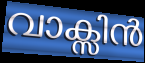
വാക്സിൻ